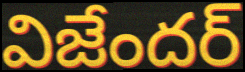
విజేందర్